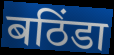
बठिंडा